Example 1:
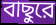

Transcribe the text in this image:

বাছুরে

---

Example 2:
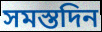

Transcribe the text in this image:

সমস্তদিন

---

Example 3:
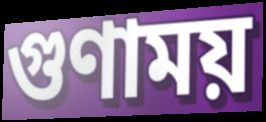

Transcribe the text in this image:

গুণাময়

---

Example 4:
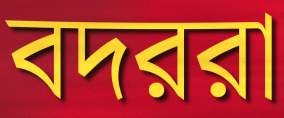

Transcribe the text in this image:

বদররা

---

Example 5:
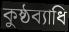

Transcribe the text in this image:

কুষ্ঠব্যাধি